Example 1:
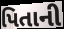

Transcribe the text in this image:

પિતાની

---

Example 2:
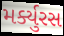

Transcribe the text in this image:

મર્ક્યુરસ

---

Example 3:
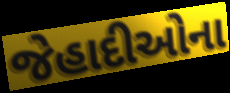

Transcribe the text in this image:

જેહાદીઓના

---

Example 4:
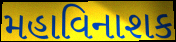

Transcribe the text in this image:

મહાવિનાશક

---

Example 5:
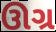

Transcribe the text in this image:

ઊગ્ર